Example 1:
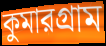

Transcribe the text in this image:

কুমারগ্রাম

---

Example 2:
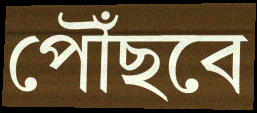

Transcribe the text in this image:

পৌঁছবে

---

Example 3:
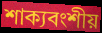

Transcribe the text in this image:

শাক্যবংশীয়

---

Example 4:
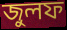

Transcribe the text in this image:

জুলফ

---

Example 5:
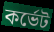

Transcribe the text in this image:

কর্ভেট